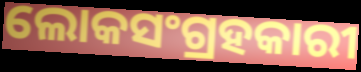
ଲୋକସଂଗ୍ରହକାରୀ